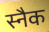
स्नैक